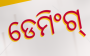
ଡେମିଂଗ୍